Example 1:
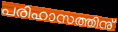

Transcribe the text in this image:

പരിഹാസത്തിനു്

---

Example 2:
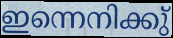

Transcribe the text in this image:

ഇന്നെനിക്കു്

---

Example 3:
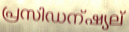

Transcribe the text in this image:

പ്രസിഡന്ഷ്യല്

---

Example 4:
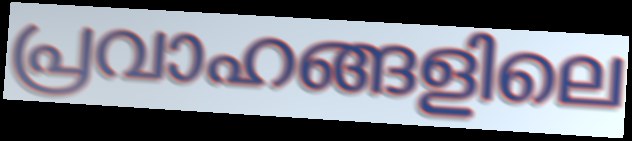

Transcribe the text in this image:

പ്രവാഹങ്ങളിലെ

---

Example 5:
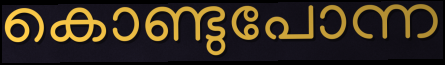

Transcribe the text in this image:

കൊണ്ടുപോന്ന